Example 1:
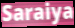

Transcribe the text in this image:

Saraiya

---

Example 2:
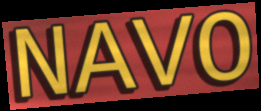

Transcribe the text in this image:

NAVO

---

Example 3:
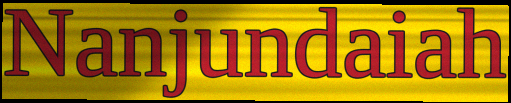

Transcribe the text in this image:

Nanjundaiah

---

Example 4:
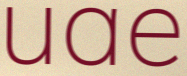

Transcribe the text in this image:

uae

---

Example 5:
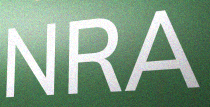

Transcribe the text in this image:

NRA